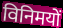
विनिमयों